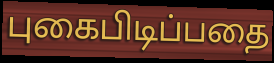
புகைபிடிப்பதை